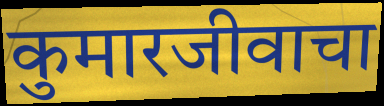
कुमारजीवाचा